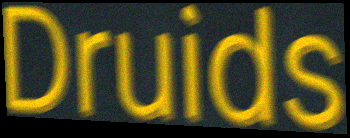
Druids